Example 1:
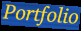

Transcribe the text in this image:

Portfolio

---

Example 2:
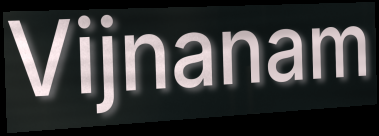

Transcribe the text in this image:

Vijnanam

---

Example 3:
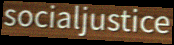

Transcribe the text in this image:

socialjustice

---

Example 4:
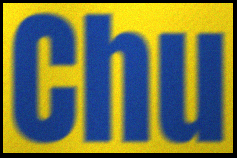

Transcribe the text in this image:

Chu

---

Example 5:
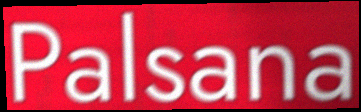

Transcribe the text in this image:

Palsana